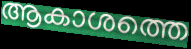
ആകാശത്തെ